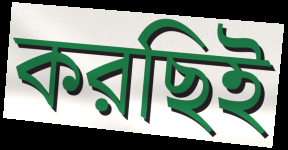
করছিই